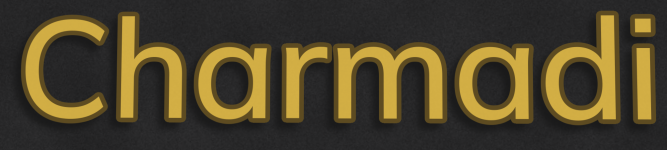
Charmadi